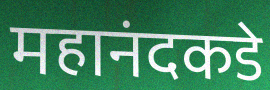
महानंदकडे